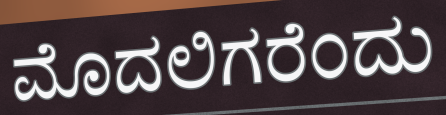
ಮೊದಲಿಗರೆಂದು